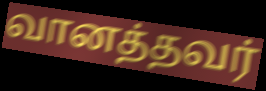
வானத்தவர்